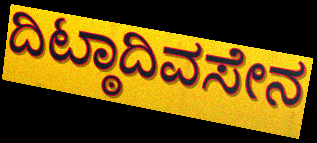
ದಿಟ್ಠಾದಿವಸೇನ